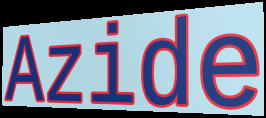
Azide